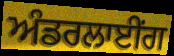
ਅੰਡਰਲਾਈੰਗ